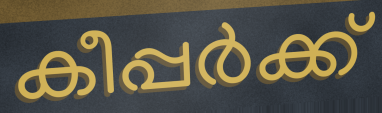
കീപ്പർക്ക്